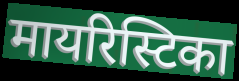
मायरिस्टिका